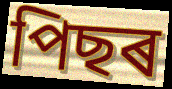
পিছৰ